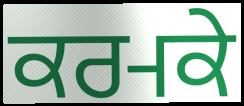
ਕਰ੍ਮਕੇ